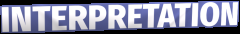
INTERPRETATION